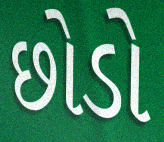
છોડો